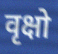
वृक्षो